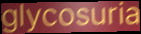
glycosuria